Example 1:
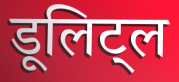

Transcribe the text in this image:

डूलिट्ल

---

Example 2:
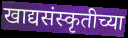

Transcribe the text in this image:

खाद्यसंस्कृतीच्या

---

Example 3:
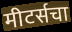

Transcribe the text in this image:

मीटर्सचा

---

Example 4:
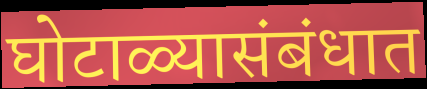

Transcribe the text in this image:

घोटाळ्यासंबंधात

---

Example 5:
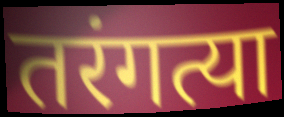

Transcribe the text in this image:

तरंगत्या